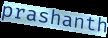
prashanth